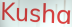
Kusha